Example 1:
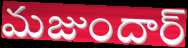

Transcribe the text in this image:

మజుందార్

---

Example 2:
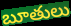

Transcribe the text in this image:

బూతులు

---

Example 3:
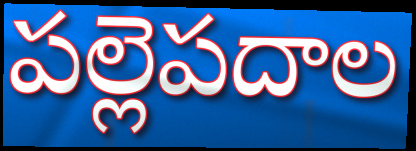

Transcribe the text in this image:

పల్లెపదాల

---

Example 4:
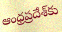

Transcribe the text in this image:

ఆంధ్రప్రదేశ్‌కు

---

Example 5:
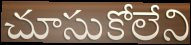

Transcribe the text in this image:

చూసుకోలేని